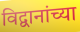
विद्वानांच्या